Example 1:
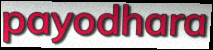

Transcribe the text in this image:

payodhara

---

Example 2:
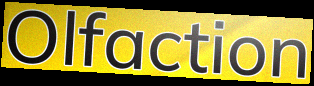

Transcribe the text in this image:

Olfaction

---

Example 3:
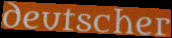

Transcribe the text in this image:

deutscher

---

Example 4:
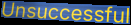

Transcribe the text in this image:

Unsuccessful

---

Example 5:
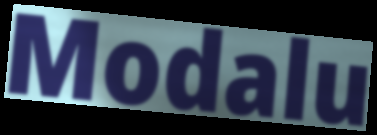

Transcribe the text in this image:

Modalu